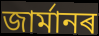
জাৰ্মানৰ